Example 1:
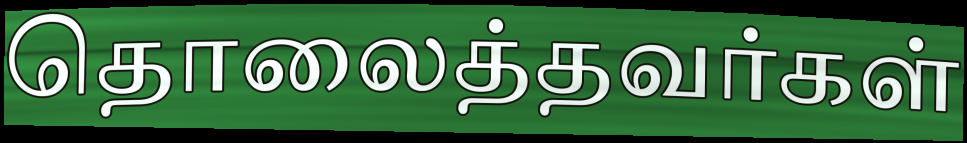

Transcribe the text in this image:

தொலைத்தவர்கள்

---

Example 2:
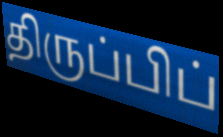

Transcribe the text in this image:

திருப்பிப்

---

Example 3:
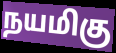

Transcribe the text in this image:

நயமிகு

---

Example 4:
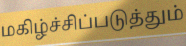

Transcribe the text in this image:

மகிழ்ச்சிப்படுத்தும்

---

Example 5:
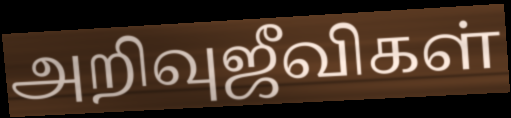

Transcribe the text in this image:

அறிவுஜீவிகள்